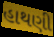
હાથણી